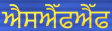
ਐਸਐੱਫਐੱਫ